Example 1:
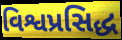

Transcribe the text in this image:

વિશ્વપ્રસિદ્ધ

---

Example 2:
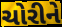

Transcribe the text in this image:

ચોરીને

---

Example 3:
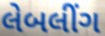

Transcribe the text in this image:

લેબલીંગ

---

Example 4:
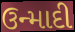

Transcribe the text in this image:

ઉન્માદી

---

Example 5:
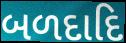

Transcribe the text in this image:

બળદાદિ